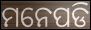
ମନେପଡି